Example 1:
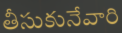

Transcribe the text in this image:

తీసుకునేవారి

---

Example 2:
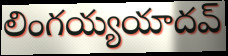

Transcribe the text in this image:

లింగయ్యయాదవ్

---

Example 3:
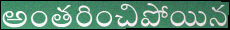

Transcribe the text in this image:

అంతరించిపోయిన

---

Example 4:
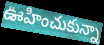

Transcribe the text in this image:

ఊహించుకున్నా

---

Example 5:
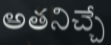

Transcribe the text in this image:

అతనిచ్చే